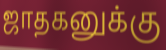
ஜாதகனுக்கு